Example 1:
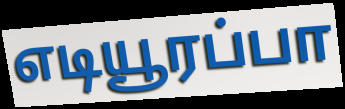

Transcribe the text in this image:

எடியூரப்பா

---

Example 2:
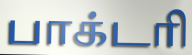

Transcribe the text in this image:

பாக்டரி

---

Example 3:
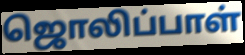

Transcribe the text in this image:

ஜொலிப்பாள்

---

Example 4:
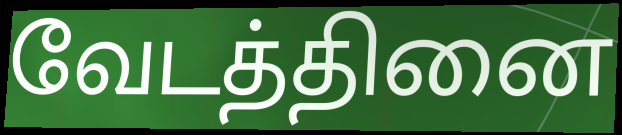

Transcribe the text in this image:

வேடத்தினை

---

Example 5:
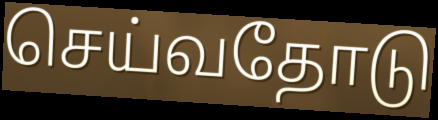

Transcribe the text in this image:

செய்வதோடு